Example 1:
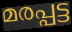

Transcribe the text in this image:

മരപ്പട്ട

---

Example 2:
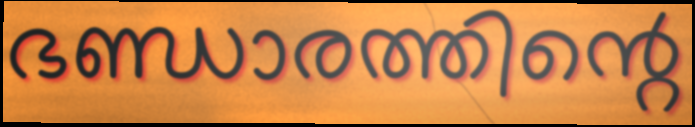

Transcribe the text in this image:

ഭണ്ഡാരത്തിന്റെ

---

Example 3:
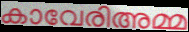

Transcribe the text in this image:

കാവേരിഅമ്മ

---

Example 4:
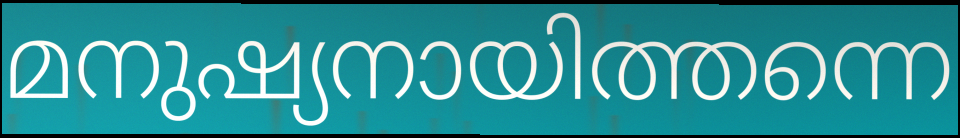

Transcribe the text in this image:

മനുഷ്യനായിത്തന്നെ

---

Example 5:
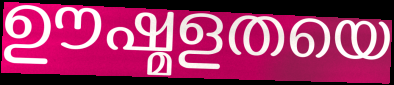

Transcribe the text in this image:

ഊഷ്മളതയെ